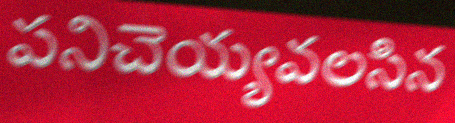
పనిచెయ్యవలసిన